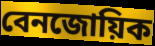
বেনজোয়িক